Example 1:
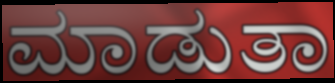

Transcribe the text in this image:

ಮಾಡುತಾ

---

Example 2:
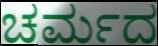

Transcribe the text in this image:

ಚರ್ಮದ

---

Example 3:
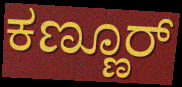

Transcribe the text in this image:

ಕಣ್ಣೂರ್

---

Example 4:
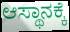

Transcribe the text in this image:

ಆಸ್ಥಾನಕ್ಕೆ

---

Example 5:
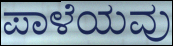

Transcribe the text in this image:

ಪಾಳೆಯವು